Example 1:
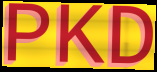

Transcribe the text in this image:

PKD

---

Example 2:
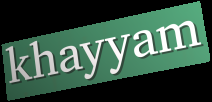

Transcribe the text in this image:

khayyam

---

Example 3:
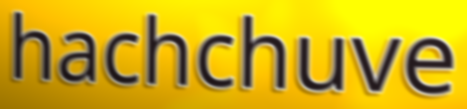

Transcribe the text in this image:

hachchuve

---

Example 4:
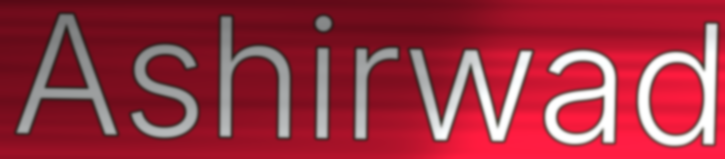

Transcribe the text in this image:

Ashirwad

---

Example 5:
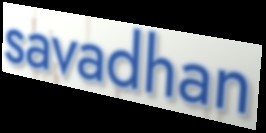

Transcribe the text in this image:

savadhan